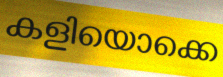
കളിയൊക്കെ